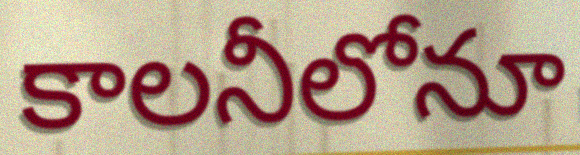
కాలనీలోనూ